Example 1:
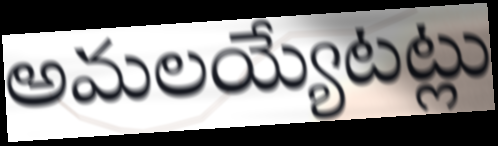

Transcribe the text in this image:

అమలయ్యేటట్లు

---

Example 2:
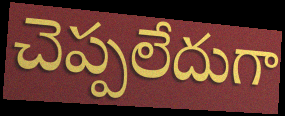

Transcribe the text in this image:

చెప్పలేదుగా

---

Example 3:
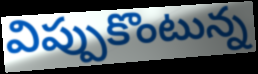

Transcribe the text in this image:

విప్పుకొంటున్న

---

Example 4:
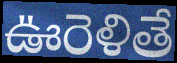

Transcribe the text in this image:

ఊరెళితే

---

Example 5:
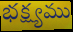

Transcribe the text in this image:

భక్ష్యము